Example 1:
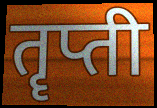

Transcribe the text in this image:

तॄप्ती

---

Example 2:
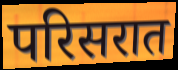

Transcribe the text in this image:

परिसरात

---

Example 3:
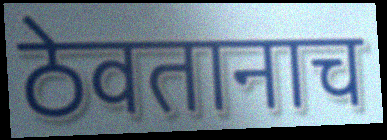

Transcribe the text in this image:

ठेवतानाच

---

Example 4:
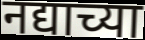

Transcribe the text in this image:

नद्याच्या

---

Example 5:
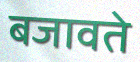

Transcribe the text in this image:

बजावते